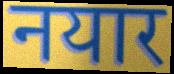
नयार